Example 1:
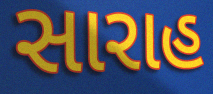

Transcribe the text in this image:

સારાહ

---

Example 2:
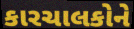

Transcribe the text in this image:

કારચાલકોને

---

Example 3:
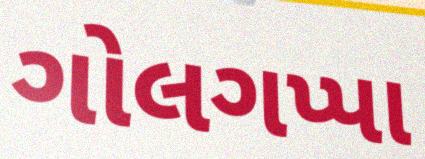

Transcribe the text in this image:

ગોલગપ્પા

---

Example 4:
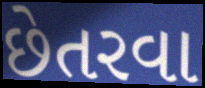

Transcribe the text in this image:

છેતરવા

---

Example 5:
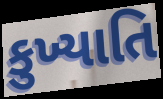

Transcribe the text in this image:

કુખ્યાતિ